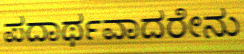
ಪದಾರ್ಥವಾದರೇನು